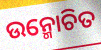
ଉନ୍ମୋଚିତ